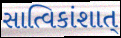
સાત્વિકાંશાત્